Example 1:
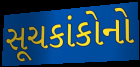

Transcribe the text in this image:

સૂચકાંકોનો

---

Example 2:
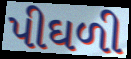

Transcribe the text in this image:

પીઘળી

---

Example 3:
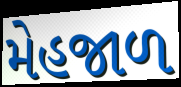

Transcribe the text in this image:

મેહજાળ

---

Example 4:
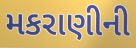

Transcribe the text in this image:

મકરાણીની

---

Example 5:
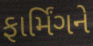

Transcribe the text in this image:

ફાર્મિંગને